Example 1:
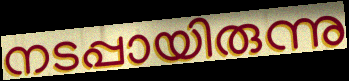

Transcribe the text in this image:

നടപ്പായിരുന്നു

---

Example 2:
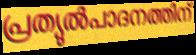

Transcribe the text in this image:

പ്രത്യുൽപാദനത്തിന്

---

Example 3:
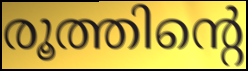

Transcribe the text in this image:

രൂത്തിന്റെ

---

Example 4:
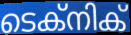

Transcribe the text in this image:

ടെക്നിക്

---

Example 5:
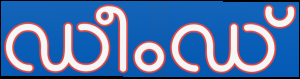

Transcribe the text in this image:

ഡീംഡ്